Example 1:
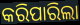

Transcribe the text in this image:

କରିପାରିଲା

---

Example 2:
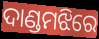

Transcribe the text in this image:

ଦାଣ୍ଡମଝିରେ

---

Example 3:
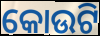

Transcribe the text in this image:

କୋଉଟି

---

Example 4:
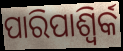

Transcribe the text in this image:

ପାରିପାଶ୍ୱିର୍କ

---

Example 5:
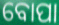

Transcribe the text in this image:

ବୋପା